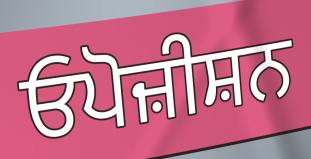
ਓਪੋਜ਼ੀਸ਼ਨ